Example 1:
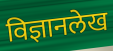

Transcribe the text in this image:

विज्ञानलेख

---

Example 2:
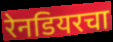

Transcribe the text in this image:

रेनडियरचा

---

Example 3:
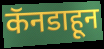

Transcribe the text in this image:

कॅनडाहून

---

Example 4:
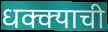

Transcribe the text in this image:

धक्क्याची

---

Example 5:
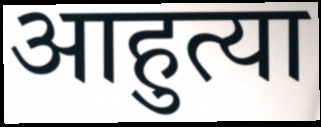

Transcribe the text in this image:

आहुत्या